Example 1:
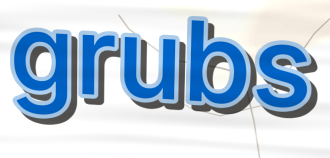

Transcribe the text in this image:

grubs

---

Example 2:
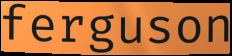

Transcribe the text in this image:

ferguson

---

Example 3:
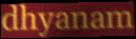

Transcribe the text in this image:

dhyanam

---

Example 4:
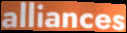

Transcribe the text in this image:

alliances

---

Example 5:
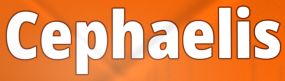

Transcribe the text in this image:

Cephaelis